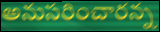
అనుసరించారన్న